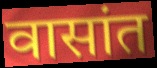
वासांत